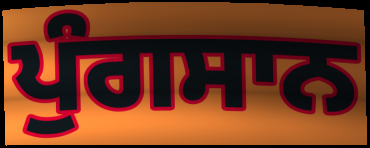
ਪੁੰਗਸਾਨ